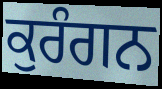
ਕੁਰੰਗਨ